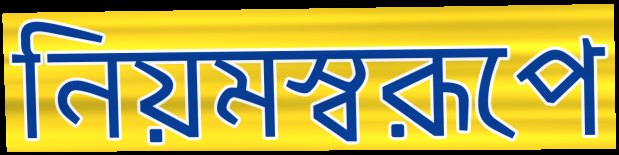
নিয়মস্বরূপে